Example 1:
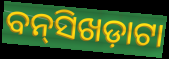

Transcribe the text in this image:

ବନ୍‌ସିଖଡ଼ାଟା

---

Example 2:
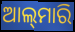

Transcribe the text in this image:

ଆଲ୍‌ମାରି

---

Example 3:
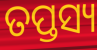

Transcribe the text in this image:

ତପ୍ତସ୍ୟ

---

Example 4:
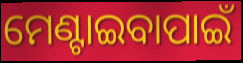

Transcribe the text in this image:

ମେଣ୍ଟାଇବାପାଇଁ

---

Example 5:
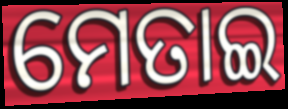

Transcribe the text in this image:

ମେତାଇ